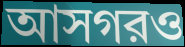
আসগরও